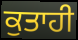
ਕੁਤਾਹੀ